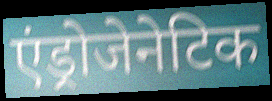
एंड्रोजेनेटिक